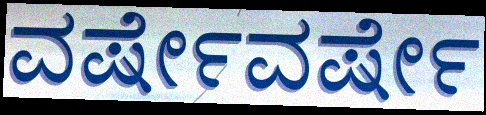
ವರ್ಷೇವರ್ಷೇ